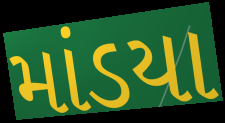
માંડયા